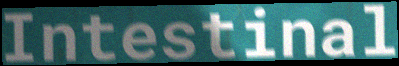
Intestinal